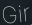
Gir